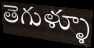
తెగుళ్ళూ